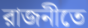
রাজনীতে